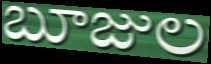
బూజుల